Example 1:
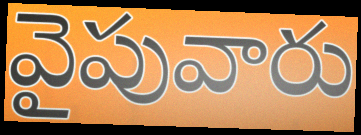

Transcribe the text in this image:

వైపువారు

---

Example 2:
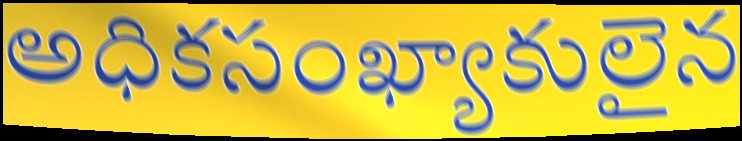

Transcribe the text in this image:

అధికసంఖ్యాకులైన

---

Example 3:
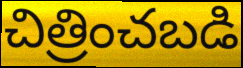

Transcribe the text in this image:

చిత్రించబడి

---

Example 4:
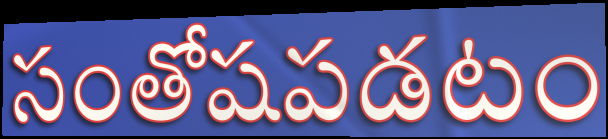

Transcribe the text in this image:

సంతోషపడటం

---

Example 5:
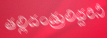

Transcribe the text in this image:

తల్లిదండ్రులిద్దరినీ